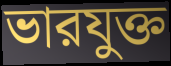
ভারযুক্ত